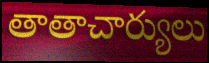
తాతాచార్యులు